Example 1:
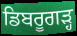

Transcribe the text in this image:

ਡਿਬਰੂਗੜ੍ਹ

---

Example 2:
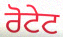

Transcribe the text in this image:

ਰੋਟੇਟ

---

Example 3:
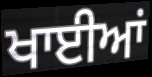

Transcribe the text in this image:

ਖਾਈਆਂ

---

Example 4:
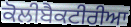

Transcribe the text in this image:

ਕੋਲੀਬੈਕਟੀਰੀਆ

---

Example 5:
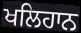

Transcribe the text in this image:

ਖਲਿਹਾਨ